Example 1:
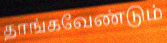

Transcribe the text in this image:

தாங்கவேண்டும்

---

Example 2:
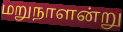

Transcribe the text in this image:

மறுநாளன்று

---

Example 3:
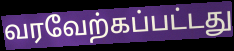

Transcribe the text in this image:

வரவேற்கப்பட்டது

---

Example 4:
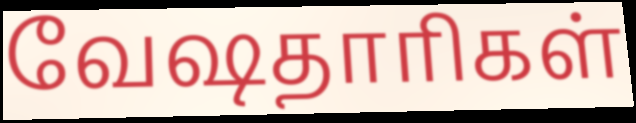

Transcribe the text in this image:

வேஷதாரிகள்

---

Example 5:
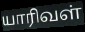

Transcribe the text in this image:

யாரிவள்